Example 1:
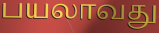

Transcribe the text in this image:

பயலாவது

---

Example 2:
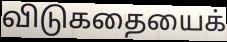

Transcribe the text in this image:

விடுகதையைக்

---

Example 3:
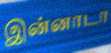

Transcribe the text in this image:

இன்னாடா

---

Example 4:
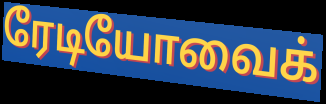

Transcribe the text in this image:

ரேடியோவைக்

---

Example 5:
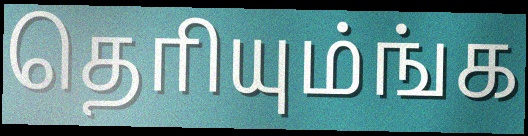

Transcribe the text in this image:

தெரியும்ங்க